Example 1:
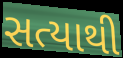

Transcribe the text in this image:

સત્યાથી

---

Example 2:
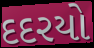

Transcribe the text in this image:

દદરયો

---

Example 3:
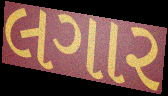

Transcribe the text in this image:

લગાર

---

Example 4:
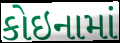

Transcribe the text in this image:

કોઇનામાં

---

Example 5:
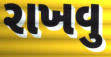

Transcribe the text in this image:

રાખવુ